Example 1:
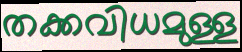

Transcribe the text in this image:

തക്കവിധമുള്ള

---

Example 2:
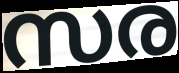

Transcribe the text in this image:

സര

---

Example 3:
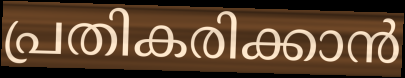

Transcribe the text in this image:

പ്രതികരിക്കാൻ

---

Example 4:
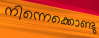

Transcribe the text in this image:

നിന്നെക്കൊണ്ടു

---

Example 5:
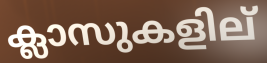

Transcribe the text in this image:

ക്ലാസുകളില്